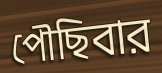
পৌছিবার